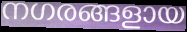
നഗരങ്ങളായ